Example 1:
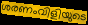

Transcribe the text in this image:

ശരണംവിളിയുടെ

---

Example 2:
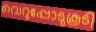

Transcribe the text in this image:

വെറുപ്പോടുകൂടി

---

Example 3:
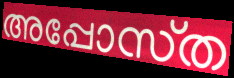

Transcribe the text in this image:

അപ്പോസ്‌ത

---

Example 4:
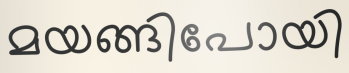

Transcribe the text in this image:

മയങ്ങിപോയി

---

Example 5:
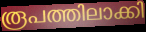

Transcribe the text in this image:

രൂപത്തിലാക്കി